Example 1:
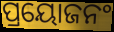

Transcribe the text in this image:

ପ୍ରୟୋଜନଂ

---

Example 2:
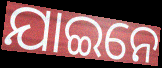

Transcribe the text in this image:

ଯାଇନେ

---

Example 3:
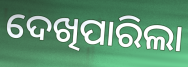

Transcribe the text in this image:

ଦେଖିପାରିଲା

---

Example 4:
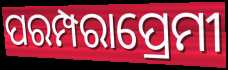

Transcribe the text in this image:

ପରମ୍ପରାପ୍ରେମୀ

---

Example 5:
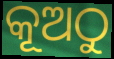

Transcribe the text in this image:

କୂଅଠୁ